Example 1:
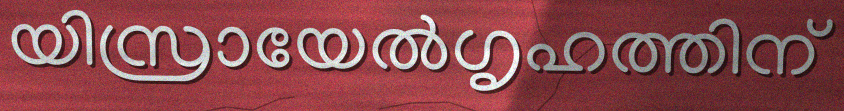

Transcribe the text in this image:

യിസ്രായേൽഗൃഹത്തിന്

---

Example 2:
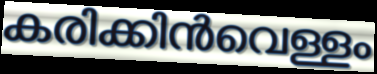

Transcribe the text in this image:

കരിക്കിൻവെള്ളം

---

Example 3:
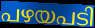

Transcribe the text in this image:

പഴയപടി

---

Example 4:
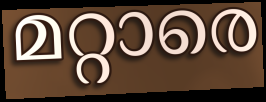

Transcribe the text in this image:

മറ്റാരെ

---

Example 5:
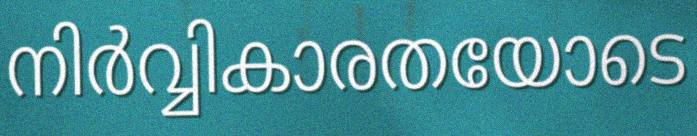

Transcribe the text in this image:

നിർവ്വികാരതയോടെ